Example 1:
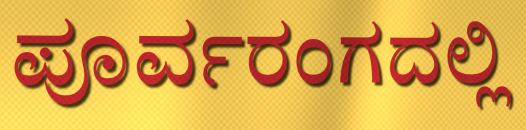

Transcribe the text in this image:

ಪೂರ್ವರಂಗದಲ್ಲಿ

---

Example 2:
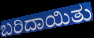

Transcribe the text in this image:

ಬರಿದಾಯಿತು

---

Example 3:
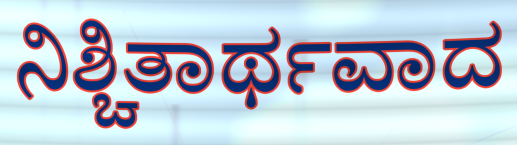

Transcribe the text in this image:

ನಿಶ್ಚಿತಾರ್ಥವಾದ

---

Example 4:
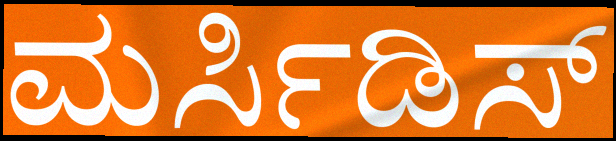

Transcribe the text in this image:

ಮರ್ಸಿಡಿಸ್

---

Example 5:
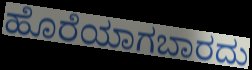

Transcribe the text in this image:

ಹೊರೆಯಾಗಬಾರದು